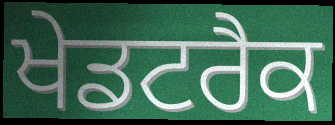
ਖੇਡਟਰੈਕ